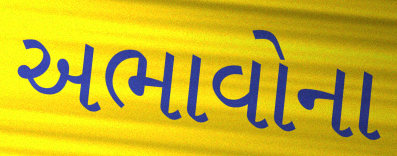
અભાવોના